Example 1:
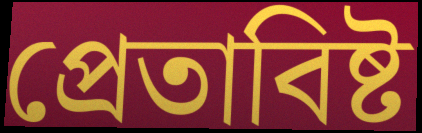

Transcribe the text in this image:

প্রেতাবিষ্ট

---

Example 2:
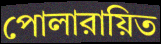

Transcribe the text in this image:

পোলারায়িত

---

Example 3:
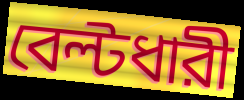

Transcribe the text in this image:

বেল্টধারী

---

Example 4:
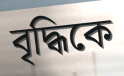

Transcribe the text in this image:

বৃদ্ধিকে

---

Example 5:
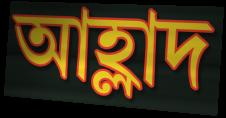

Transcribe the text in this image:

আহ্লাদ